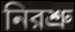
নিরশ্রু